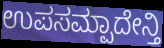
ಉಪಸಮ್ಪಾದೇನ್ತಿ